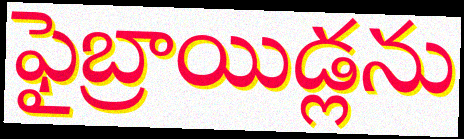
ఫైబ్రాయిడ్లను